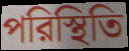
পরিস্থিতি